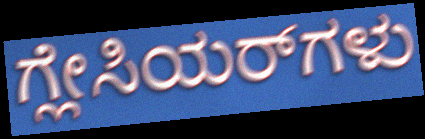
ಗ್ಲೇಸಿಯರ್‌ಗಳು